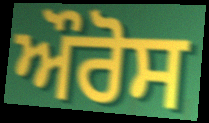
ਔਰੋਸ